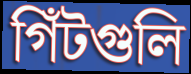
গিঁটগুলি